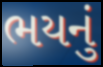
ભયનું